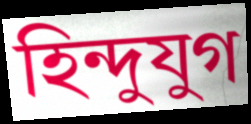
হিন্দুযুগ